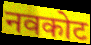
नवकोट